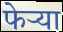
फेर्‍या